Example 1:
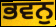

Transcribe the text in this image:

ਭਵਨੁ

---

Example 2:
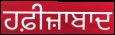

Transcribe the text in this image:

ਹਫ਼ੀਜ਼ਾਬਾਦ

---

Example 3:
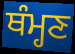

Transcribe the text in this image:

ਥੰਮ੍ਹਣ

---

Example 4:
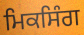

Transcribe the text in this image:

ਮਿਕਸਿੰਗ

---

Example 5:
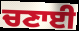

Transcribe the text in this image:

ਚਣਾਈ